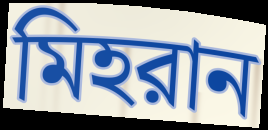
মিহরান